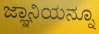
ಜ್ಞಾನಿಯನ್ನೂ